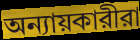
অন্যায়কারীরা